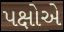
પક્ષોએ